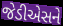
જેડીએસને